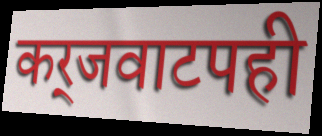
कर्जवाटपही